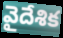
వైదేశిక